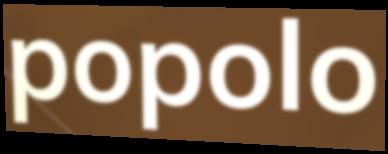
popolo